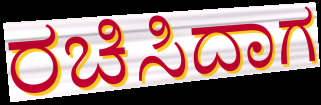
ರಚಿಸಿದಾಗ